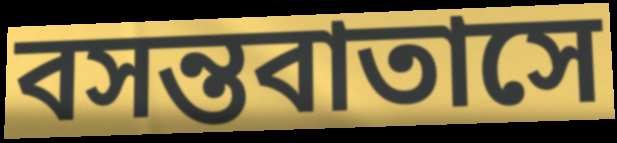
বসন্তবাতাসে